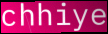
chhiye